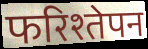
फरिश्तेपन